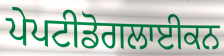
ਪੇਪਟੀਡੋਗਲਾਈਕਨ